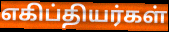
எகிப்தியர்கள்